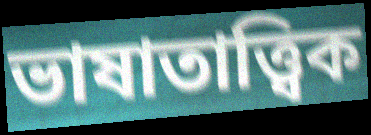
ভাষাতাত্ত্বিক